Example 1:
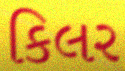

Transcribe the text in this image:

કિલર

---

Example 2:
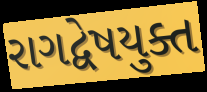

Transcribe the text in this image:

રાગદ્વેષયુક્ત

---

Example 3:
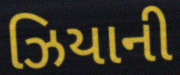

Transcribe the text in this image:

ઝિયાની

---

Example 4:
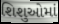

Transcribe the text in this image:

શિશુઓમાં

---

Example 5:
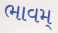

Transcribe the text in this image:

ભાવમ્